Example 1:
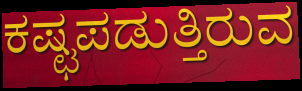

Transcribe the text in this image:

ಕಷ್ಟಪಡುತ್ತಿರುವ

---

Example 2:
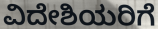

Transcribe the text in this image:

ವಿದೇಶಿಯರಿಗೆ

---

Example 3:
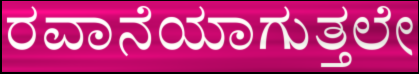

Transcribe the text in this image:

ರವಾನೆಯಾಗುತ್ತಲೇ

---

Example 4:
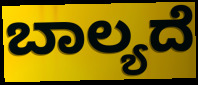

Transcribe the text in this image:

ಬಾಲ್ಯದೆ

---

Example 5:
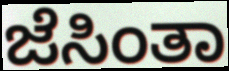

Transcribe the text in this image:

ಜೆಸಿಂತಾ